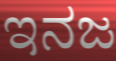
ಇನಜ